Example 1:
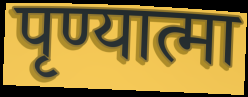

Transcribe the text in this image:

पृण्यात्मा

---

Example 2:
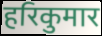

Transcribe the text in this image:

हरिकुमार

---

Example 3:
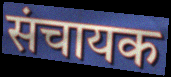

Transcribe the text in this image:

संचायक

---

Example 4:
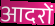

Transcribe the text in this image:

आदरों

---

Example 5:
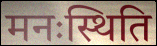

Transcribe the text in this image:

मनःस्थिति